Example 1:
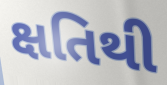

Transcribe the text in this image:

ક્ષતિથી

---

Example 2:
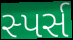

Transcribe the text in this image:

સ્પર્સ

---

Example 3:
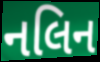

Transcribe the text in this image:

નલિન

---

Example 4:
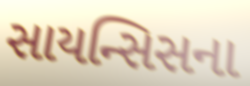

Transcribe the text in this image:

સાયન્સિસના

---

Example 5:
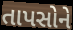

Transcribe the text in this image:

તાપસોને